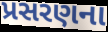
પ્રસરણના